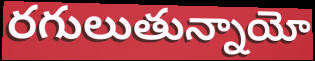
రగులుతున్నాయో